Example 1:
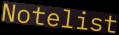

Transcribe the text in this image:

Notelist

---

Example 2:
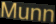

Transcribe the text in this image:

Munn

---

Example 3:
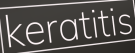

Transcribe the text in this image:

keratitis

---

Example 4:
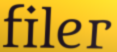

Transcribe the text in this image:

filer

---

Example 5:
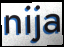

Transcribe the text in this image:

nija